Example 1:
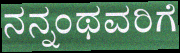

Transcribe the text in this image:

ನನ್ನಂಥವರಿಗೆ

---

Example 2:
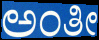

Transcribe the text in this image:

ಅಂತೀ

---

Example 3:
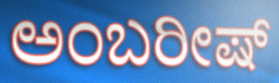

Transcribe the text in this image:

ಅಂಬರೀಷ್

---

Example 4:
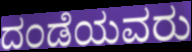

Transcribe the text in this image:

ದಂಡೆಯವರು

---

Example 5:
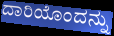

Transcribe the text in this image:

ದಾರಿಯೊಂದನ್ನು